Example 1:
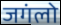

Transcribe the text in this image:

जगंलो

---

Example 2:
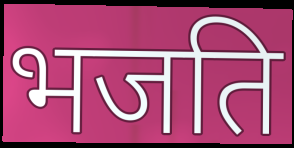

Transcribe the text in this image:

भजति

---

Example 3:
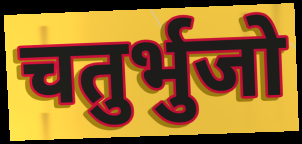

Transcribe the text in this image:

चतुर्भुजो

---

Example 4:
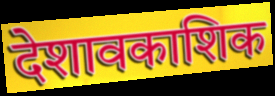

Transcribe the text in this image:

देशावकाशिक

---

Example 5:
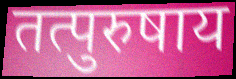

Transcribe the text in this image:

तत्पुरुषाय